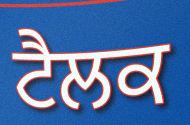
ਟੈਲਕ